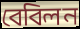
বেবিলন